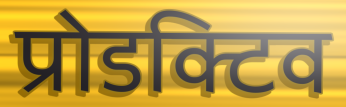
प्रोडक्टिव